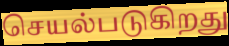
செயல்படுகிறது